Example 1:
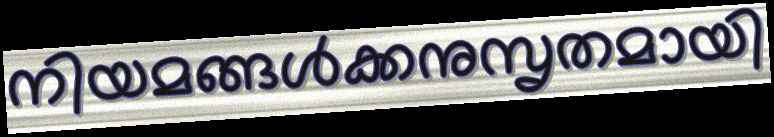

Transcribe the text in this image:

നിയമങ്ങൾക്കനുസൃതമായി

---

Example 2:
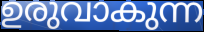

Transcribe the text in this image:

ഉരുവാകുന്ന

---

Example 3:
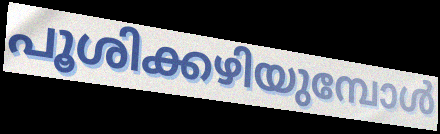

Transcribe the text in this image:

പൂശിക്കഴിയുമ്പോൾ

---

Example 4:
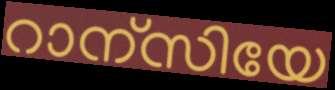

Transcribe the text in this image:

റാന്സിയേ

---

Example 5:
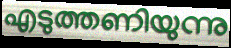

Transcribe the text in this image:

എടുത്തണിയുന്നു